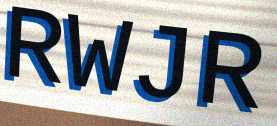
RWJR